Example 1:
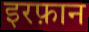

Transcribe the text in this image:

इरफ़ान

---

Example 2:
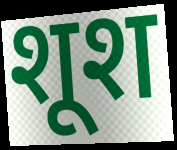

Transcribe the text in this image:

शूश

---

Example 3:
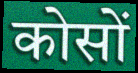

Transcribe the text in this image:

कोसों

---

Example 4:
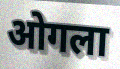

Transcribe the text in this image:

ओगला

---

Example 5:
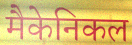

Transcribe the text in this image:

मैकेनिकल